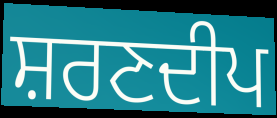
ਸ਼ਰਣਦੀਪ